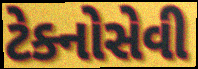
ટેક્નોસેવી